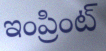
ఇంప్రింట్